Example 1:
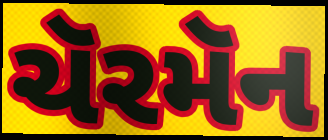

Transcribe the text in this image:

ચૅરમૅન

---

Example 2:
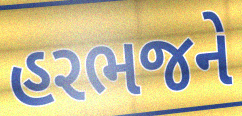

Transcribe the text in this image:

હરભજને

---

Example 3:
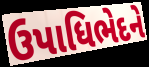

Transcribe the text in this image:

ઉપાધિભેદને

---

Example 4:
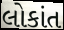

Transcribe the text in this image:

લોકાંત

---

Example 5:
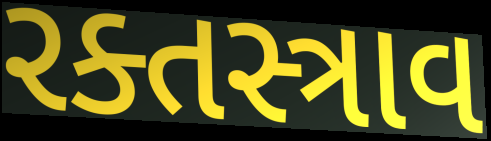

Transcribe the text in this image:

રક્તસ્ત્રાવ